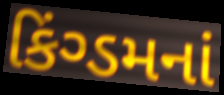
કિંગ્ડમનાં